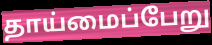
தாய்மைப்பேறு